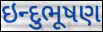
ઇન્દુભૂષણ